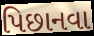
પિછાનવા